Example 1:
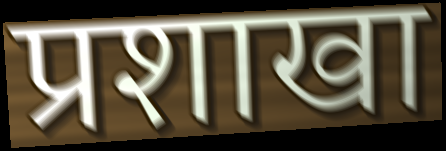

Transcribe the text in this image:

प्रशाखा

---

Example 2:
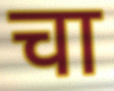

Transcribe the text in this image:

चा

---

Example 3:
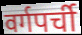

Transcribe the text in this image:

वर्गपर्ची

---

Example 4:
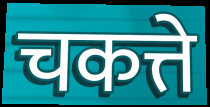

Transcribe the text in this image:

चकत्ते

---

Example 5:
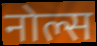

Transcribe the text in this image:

नोल्स